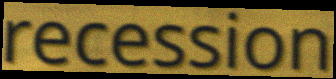
recession